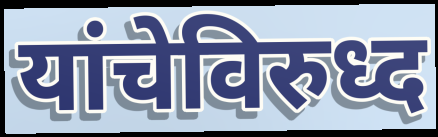
यांचेविरुध्द